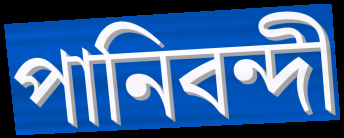
পানিবন্দী